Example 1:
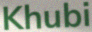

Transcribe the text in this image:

Khubi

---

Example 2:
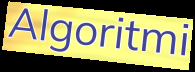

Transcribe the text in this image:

Algoritmi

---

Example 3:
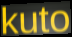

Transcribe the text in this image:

kuto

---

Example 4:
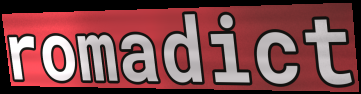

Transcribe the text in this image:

romadict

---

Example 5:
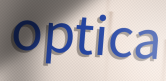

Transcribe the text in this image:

optica